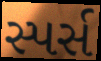
સ્પર્સ